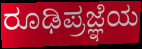
ರೂಢಿಪ್ರಜ್ಞೆಯ